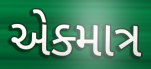
એક્માત્ર